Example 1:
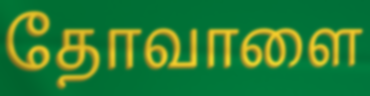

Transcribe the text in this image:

தோவாளை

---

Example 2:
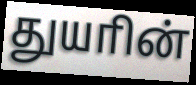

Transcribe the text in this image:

துயரின்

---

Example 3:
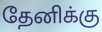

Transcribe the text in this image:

தேனிக்கு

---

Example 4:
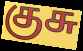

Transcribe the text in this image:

குசு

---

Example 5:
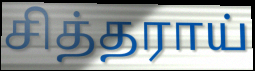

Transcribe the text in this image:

சித்தராய்